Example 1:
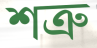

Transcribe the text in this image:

শত্রু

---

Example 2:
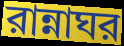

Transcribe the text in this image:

রান্নাঘর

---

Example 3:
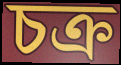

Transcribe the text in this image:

চক্র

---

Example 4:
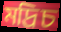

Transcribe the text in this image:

মদ্রিচ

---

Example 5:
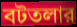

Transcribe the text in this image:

বটতলার